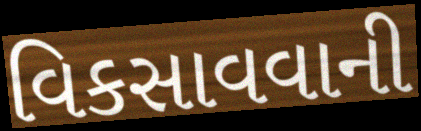
વિકસાવવાની